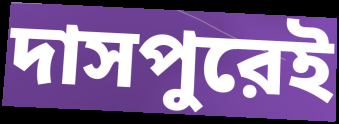
দাসপুরেই